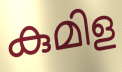
കുമിള